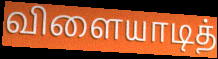
விளையாடித்